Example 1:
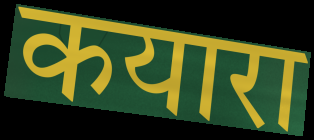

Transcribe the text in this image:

कयारा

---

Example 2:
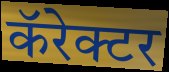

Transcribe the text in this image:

कॅरेक्टर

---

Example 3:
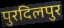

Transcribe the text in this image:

पुरदिलपुर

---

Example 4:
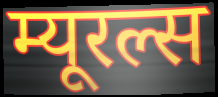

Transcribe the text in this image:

म्यूरल्स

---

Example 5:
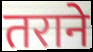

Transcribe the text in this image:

तराने